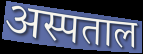
अस्पताल